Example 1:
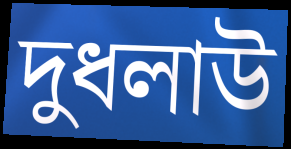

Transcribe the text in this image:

দুধলাউ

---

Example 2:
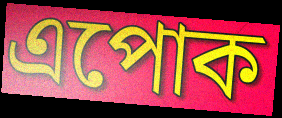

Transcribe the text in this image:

এপোক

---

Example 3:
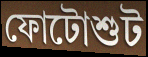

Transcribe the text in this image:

ফোটোশুট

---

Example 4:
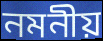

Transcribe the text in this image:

নমনীয়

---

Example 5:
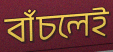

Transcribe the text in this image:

বাঁচলেই